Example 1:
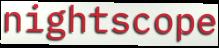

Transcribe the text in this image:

nightscope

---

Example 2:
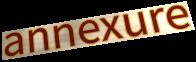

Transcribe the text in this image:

annexure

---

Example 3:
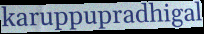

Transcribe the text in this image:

karuppupradhigal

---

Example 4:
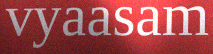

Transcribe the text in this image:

vyaasam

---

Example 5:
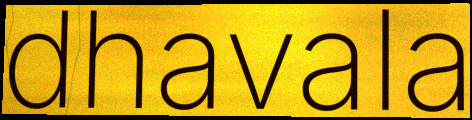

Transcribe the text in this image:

dhavala